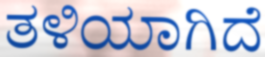
ತಳಿಯಾಗಿದೆ